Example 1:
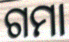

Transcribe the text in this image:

ଗମା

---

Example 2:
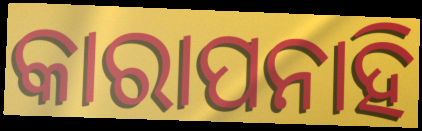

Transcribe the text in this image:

କାରାପନାହି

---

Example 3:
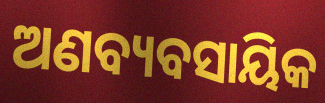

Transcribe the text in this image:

ଅଣବ୍ୟବସାୟିକ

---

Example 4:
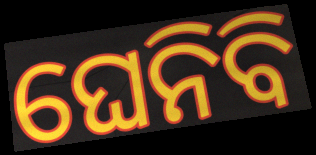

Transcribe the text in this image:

ଘେନିବି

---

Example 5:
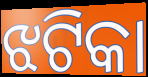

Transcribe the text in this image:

ଝଟିକା